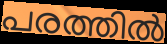
പരത്തിൽ